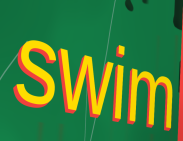
swim